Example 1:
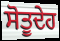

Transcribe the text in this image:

ਸੋਤੂਦੇਹ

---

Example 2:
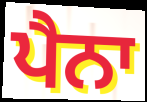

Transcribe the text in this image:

ਪੈਨਾ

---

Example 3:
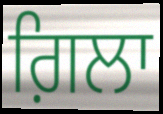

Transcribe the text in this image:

ਗ਼ਿਲਾ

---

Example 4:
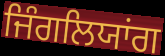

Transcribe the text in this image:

ਜਿੰਗਲਿਯਾਂਗ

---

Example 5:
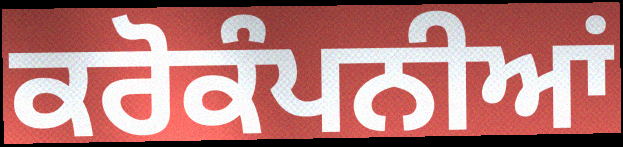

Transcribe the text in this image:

ਕਰੋਕੰਪਨੀਆਂ